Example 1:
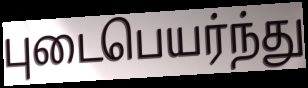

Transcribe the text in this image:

புடைபெயர்ந்து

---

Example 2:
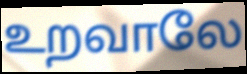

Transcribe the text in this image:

உறவாலே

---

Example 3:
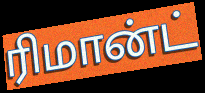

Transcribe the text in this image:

ரிமான்ட்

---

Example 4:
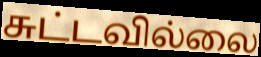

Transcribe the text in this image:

சுட்டவில்லை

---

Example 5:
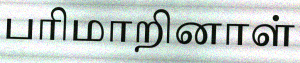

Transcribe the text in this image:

பரிமாறினாள்